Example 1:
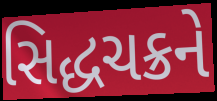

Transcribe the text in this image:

સિદ્ધચક્રને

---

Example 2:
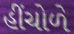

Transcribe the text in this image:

હીંચોળે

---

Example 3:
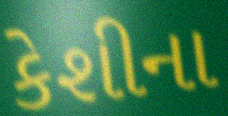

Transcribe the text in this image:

કેશીના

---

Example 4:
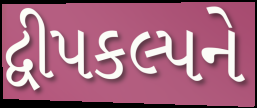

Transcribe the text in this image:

દ્વીપકલ્પને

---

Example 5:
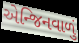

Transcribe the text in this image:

એન્જિનવાળું